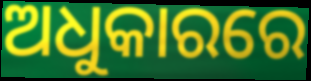
ଅଧୁକାରରେ